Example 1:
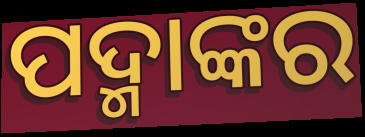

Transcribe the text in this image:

ପଦ୍ମାଙ୍କର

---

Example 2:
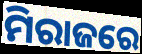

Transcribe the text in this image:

ମିରାଜରେ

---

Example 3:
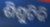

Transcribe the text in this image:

ଶିଶୁଟିକି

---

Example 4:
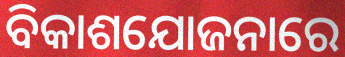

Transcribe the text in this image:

ବିକାଶଯୋଜନାରେ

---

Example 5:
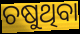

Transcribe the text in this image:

ଚଷୁଥିବା